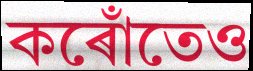
কৰোঁতেও